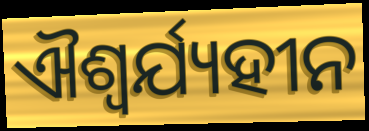
ଐଶ୍ଵର୍ଯ୍ୟହୀନ